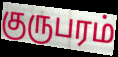
குருபரம்